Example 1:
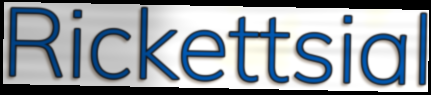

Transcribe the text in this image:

Rickettsial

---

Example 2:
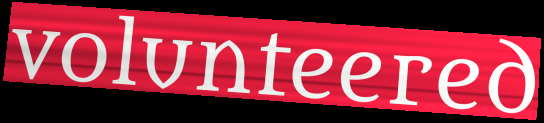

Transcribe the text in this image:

volunteered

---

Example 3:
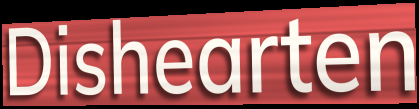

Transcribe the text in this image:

Dishearten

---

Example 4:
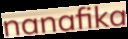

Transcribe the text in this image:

nanafika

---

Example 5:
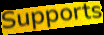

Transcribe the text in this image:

Supports